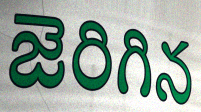
జెరిగిన